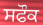
ਸਫੌਕ